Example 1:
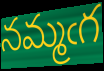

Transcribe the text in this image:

నమ్మఁగ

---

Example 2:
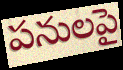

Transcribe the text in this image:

పనులపై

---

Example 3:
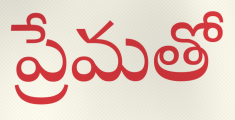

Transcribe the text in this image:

ప్రేమతో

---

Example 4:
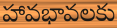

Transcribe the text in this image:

హావభావలకు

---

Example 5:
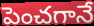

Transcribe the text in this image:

పెంచగానే